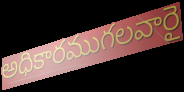
అధికారముగలవారై